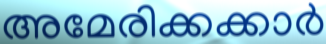
അമേരിക്കക്കാർ